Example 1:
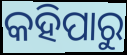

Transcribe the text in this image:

କହିପାରୁ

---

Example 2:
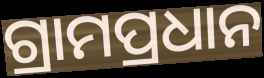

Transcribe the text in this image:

ଗ୍ରାମପ୍ରଧାନ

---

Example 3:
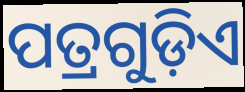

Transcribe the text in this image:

ପତ୍ରଗୁଡ଼ିଏ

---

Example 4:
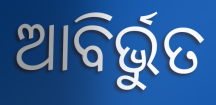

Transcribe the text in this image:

ଆବିର୍ଭୁତ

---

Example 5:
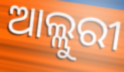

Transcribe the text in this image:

ଆଲ୍ଲୁରୀ